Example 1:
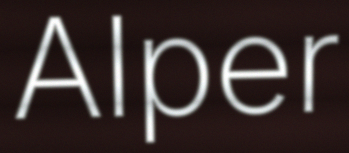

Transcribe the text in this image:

Alper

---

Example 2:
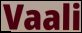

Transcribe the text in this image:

Vaali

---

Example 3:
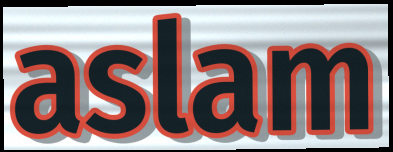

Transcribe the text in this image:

aslam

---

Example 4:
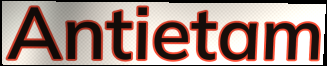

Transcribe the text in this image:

Antietam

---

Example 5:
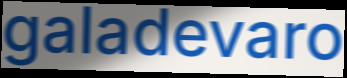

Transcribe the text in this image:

galadevaro